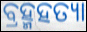
ବ୍ରହ୍ମହତ୍ୟା